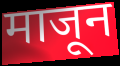
माजून